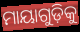
ମାୟାଗୁଡ଼ିକୁ